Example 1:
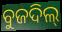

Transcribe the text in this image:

ବୁଜଦିଲ୍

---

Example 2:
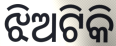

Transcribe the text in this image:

ଝିଅଟିକି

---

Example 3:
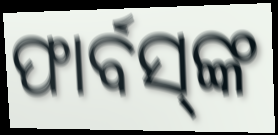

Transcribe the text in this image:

ଫାର୍ବସ୍‌ଙ୍କ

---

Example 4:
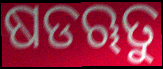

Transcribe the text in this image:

ଷଡୠତୁ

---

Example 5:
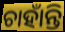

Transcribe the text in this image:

ଚାହାଁନ୍ତି